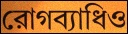
রোগব্যাধিও